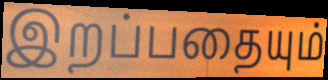
இறப்பதையும்